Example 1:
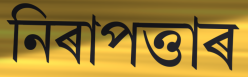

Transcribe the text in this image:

নিৰাপত্তাৰ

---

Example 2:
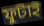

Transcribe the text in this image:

ফুটাই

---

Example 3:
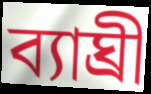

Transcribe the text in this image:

ব্যাঘ্ৰী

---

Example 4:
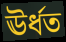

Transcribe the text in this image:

ঊৰ্ধত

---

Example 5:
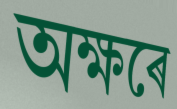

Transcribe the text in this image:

অক্ষৰে